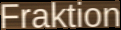
Fraktion